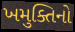
ખમુક્તિનો